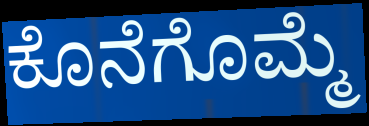
ಕೊನೆಗೊಮ್ಮೆ